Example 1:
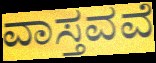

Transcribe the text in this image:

ವಾಸ್ತವವೆ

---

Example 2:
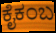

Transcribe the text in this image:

ಕೈಕಂಬ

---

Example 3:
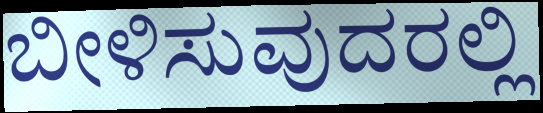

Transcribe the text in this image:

ಬೀಳಿಸುವುದರಲ್ಲಿ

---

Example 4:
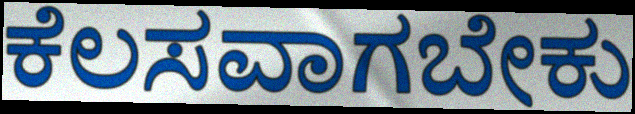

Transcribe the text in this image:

ಕೆಲಸವಾಗಬೇಕು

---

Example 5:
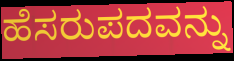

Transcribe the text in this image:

ಹೆಸರುಪದವನ್ನು